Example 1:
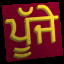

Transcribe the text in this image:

ਪੂੱਜੇ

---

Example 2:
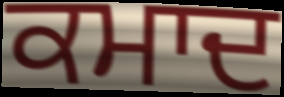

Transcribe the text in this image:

ਕਮਾਦ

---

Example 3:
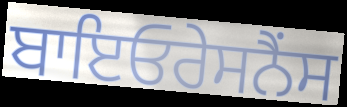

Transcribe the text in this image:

ਬਾਇਓਰੇਸਨੈਂਸ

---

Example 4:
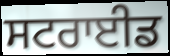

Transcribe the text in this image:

ਸਟਰਾਈਡ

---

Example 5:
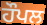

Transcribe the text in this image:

ਹੌਪਲ